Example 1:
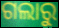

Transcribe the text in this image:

ଗଲାରୁ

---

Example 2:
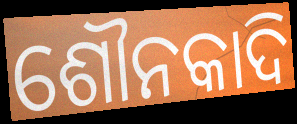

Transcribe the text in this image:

ଶୌନକାଦି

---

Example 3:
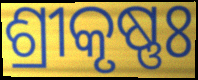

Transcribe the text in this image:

ଶ୍ରୀକୃଷ୍ଣଃ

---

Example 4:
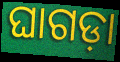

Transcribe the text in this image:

ଘାଗଡ଼ା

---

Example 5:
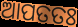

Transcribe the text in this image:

ଆପତତଃ